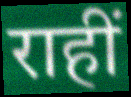
राहीं